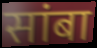
सांबा